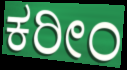
ಕರೀಂ